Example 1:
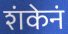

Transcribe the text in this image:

शंकेनं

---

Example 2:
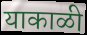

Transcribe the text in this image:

याकाळी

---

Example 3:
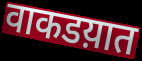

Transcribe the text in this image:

वाकडय़ात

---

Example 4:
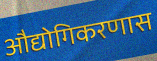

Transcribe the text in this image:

औद्योगिकरणास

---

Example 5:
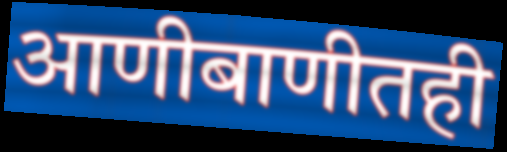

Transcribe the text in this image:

आणीबाणीतही